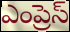
ఎంప్రెస్